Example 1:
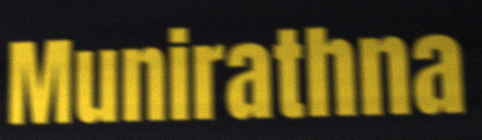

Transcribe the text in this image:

Munirathna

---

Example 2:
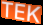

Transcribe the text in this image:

TEK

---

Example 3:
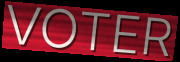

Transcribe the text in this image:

VOTER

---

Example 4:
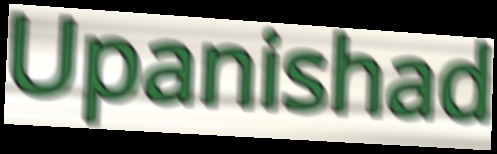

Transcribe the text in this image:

Upanishad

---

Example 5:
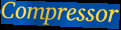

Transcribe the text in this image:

Compressor